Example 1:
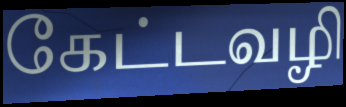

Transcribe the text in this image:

கேட்டவழி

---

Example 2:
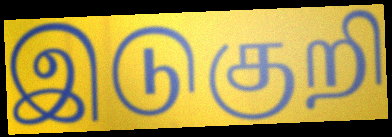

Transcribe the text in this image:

இடுகுறி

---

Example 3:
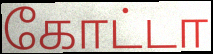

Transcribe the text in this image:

கோட்டா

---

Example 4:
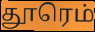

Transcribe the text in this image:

தூரெம்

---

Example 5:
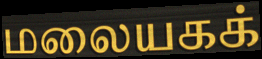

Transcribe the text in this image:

மலையகக்